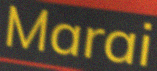
Marai